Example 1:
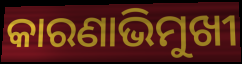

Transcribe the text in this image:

କାରଣାଭିମୁଖୀ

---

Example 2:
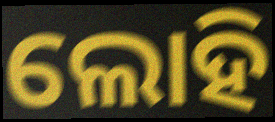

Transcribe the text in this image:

ଲୋହି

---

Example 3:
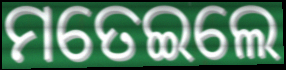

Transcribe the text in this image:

ମତେଇଲେ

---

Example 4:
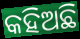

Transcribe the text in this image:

କହିଅଛି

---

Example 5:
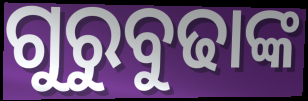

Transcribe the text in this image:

ଗୁରୁବୁଢାଙ୍କ